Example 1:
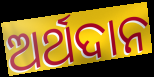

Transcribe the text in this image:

ଅର୍ଥଦାନ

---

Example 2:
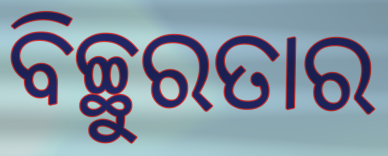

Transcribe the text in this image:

ବିଚ୍ଛୁରତାର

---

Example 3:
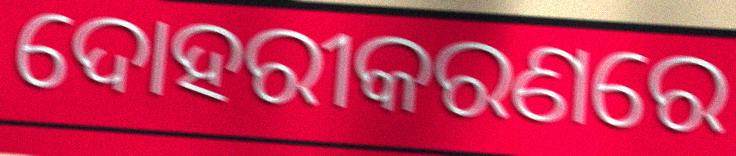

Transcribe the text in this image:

ଦୋହରୀକରଣରେ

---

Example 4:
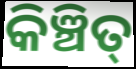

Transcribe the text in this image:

କିଞ୍ଚିତ୍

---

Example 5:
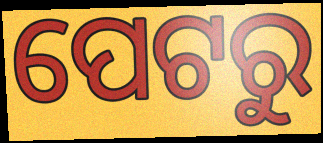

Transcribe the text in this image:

ପେଟରୁ